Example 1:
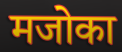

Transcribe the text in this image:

मजोका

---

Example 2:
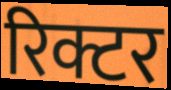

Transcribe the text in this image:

रिक्टर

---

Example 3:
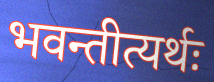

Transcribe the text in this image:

भवन्तीत्यर्थः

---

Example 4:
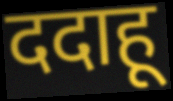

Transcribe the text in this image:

ददाहू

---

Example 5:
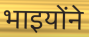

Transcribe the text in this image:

भाइयोंने